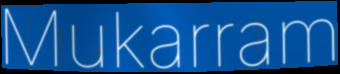
Mukarram